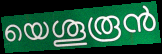
യെശൂരൂൻ